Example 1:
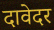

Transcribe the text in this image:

दावेदर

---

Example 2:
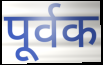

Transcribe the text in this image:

पूर्वक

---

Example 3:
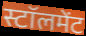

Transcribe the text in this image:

स्टॉलमेंट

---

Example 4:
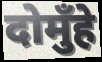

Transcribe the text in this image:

दोमुँहे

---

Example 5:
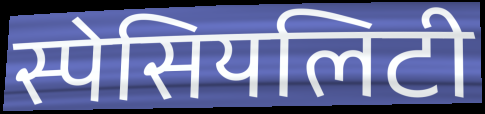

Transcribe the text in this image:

स्पेसियलिटी